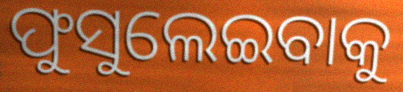
ଫୁସୁଲେଇବାକୁ